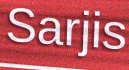
Sarjis